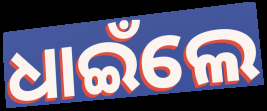
ଧାଇଁଲେ